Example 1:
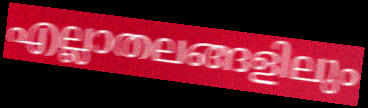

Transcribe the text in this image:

എല്ലാതലങ്ങളിലും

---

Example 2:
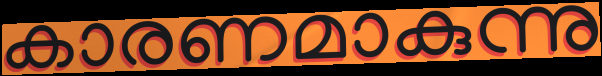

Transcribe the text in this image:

കാരണമാകുന്നു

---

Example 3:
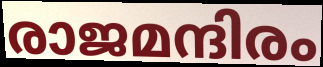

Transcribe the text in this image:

രാജമന്ദിരം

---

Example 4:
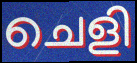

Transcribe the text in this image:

ചെളി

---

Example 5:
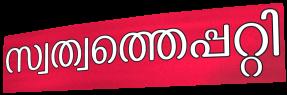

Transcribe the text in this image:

സ്വത്വത്തെപ്പറ്റി